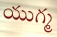
యుగ్మ